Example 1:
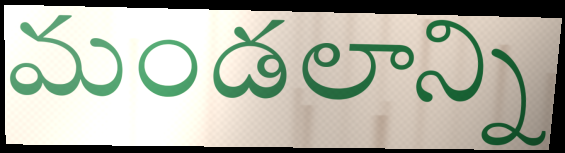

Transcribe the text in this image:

మండలాన్ని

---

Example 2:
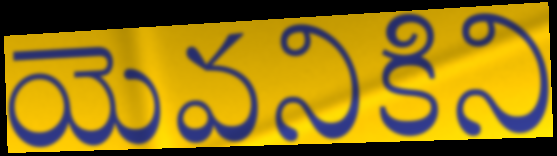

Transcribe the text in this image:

యెవనికిని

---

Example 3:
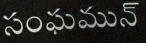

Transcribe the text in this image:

సంఘమున్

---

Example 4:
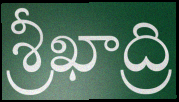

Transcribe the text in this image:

శ్రీఖాద్రి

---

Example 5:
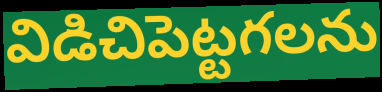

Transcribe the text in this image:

విడిచిపెట్టగలను